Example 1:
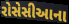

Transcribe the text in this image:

રોસેસીઆના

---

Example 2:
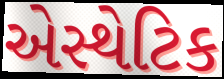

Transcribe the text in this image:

એસ્થેટિક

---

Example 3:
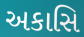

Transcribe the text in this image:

અકાસિ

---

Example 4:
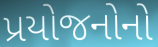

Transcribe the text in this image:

પ્રયોજનોનો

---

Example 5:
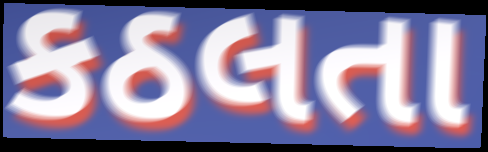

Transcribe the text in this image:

કઠલતા